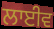
ਲਾਈਵ